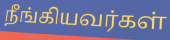
நீங்கியவர்கள்